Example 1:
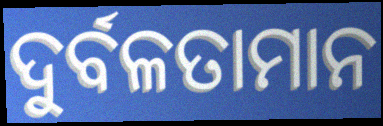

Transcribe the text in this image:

ଦୁର୍ବଳତାମାନ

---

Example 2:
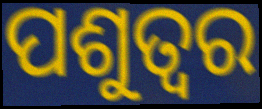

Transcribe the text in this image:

ପଶୁତ୍ୱର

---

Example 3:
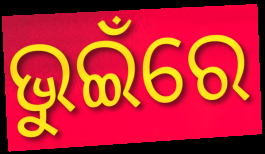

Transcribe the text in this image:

ଭୁଇଁରେ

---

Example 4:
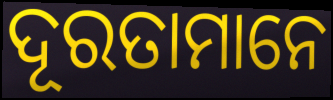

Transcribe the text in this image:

ଦୂରତାମାନେ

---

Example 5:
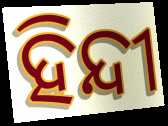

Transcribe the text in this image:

ହିନ୍ଦୀ